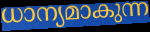
ധാന്യമാകുന്ന